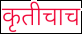
कृतीचाच